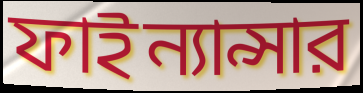
ফাইন্যান্সার